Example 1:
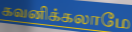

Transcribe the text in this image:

கவனிக்கலாமே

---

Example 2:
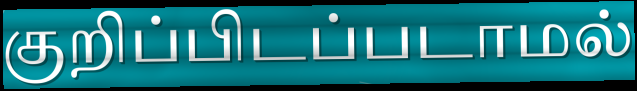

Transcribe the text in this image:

குறிப்பிடப்படாமல்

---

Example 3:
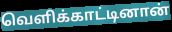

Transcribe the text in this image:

வெளிக்காட்டினான்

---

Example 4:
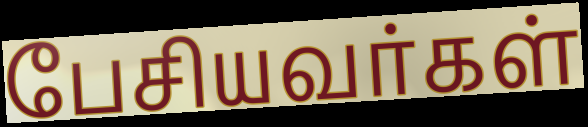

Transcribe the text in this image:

பேசியவர்கள்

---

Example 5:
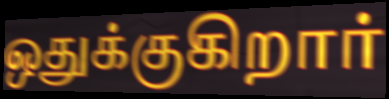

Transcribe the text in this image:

ஒதுக்குகிறார்